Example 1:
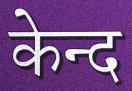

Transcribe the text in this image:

केन्द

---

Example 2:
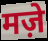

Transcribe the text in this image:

मज़े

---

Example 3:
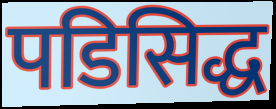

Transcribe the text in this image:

पडिसिद्ध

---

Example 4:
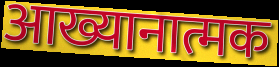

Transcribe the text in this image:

आख्यानात्मक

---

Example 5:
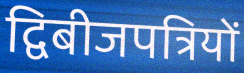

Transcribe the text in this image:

द्विबीजपत्रियों